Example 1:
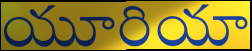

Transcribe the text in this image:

యూరియా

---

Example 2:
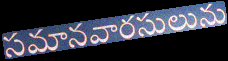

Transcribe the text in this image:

సమానవారసులును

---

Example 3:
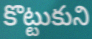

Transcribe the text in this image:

కొట్టుకుని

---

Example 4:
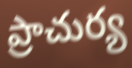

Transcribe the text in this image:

ప్రాచుర్య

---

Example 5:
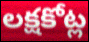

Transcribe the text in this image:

లక్షకోట్ల